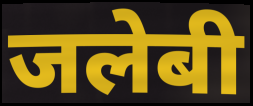
जलेबी